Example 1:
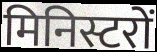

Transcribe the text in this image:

मिनिस्टरों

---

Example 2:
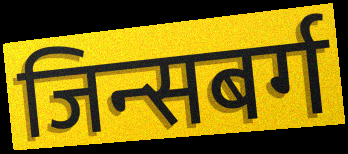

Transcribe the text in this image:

जिन्सबर्ग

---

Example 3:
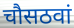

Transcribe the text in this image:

चौसठवां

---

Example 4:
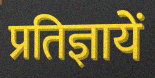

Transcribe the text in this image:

प्रतिज्ञायें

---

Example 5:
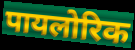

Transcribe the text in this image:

पायलोरिक